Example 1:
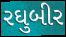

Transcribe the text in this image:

રઘુબીર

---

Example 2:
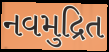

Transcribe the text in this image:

નવમુદ્રિત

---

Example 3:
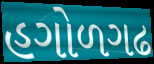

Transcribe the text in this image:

હગોળગઢ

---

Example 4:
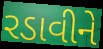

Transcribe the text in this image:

રડાવીને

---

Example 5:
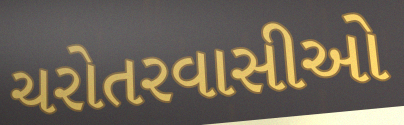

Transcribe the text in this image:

ચરોતરવાસીઓ